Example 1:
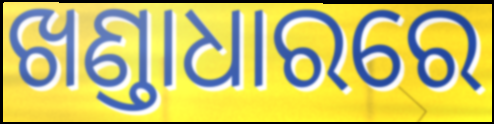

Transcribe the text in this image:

ଖଣ୍ଡାଧାରରେ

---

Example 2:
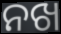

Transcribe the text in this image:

ନଖ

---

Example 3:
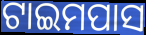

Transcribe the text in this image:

ଟାଇମପାସ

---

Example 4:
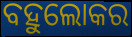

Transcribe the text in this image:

ବହୁଲୋକର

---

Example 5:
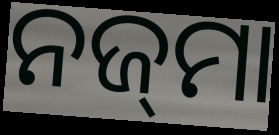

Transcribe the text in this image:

ନଜ୍‌ମା